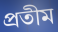
প্ৰতীম